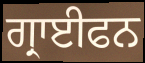
ਗ੍ਰਾਈਫਨ